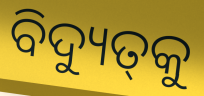
ବିଦ୍ୟୁତ୍‌କୁ